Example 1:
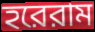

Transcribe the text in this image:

হরেরাম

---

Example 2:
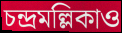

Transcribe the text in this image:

চন্দ্রমল্লিকাও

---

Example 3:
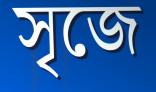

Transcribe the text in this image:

সৃজে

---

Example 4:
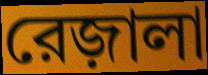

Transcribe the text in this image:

রেজ়ালা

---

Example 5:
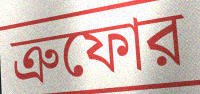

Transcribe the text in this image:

ত্রুফোর